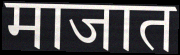
माजात